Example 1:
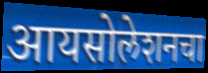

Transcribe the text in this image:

आयसोलेशनचा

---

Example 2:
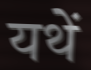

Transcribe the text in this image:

यथें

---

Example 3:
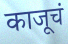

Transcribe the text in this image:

काजूचं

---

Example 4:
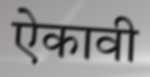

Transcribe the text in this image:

ऐकावी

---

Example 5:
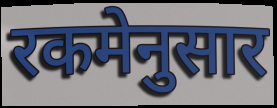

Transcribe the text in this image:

रकमेनुसार